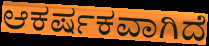
ಆಕರ್ಷಕವಾಗಿದೆ